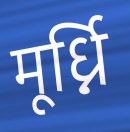
मूर्ध्नि